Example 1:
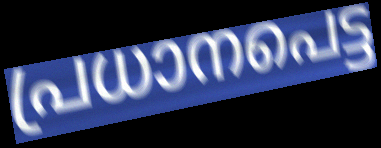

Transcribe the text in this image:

പ്രധാനപെട്ട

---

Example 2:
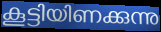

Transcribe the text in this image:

കൂട്ടിയിണക്കുന്നു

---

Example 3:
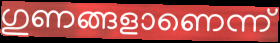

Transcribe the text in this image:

ഗുണങ്ങളാണെന്ന്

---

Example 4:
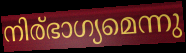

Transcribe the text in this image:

നിര്ഭാഗ്യമെന്നു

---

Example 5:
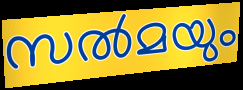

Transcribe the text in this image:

സൽമയും